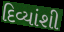
દિવ્યાંશી